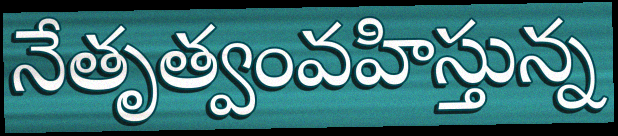
నేతృత్వంవహిస్తున్న